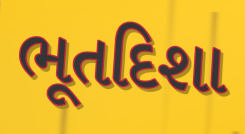
ભૂતદિશા